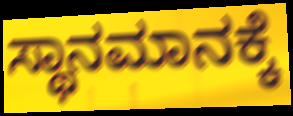
ಸ್ಥಾನಮಾನಕ್ಕೆ